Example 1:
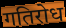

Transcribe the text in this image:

गतिरोध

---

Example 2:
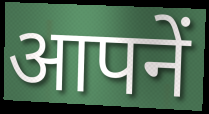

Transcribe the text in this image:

आपनें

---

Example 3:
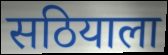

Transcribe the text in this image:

सठियाला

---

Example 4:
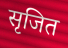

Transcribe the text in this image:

सृजित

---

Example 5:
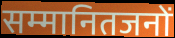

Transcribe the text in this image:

सम्मानितजनों